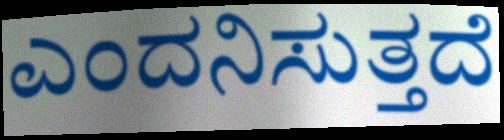
ಎಂದನಿಸುತ್ತದೆ